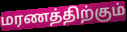
மரணத்திற்கும்